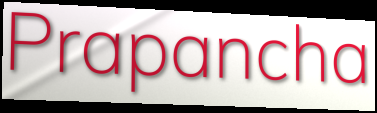
Prapancha